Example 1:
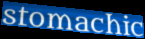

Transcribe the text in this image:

stomachic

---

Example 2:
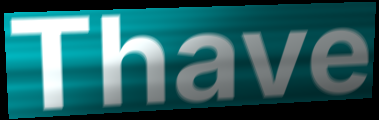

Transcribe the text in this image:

Thave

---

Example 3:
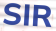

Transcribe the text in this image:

SIR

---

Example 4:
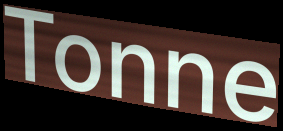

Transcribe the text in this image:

Tonne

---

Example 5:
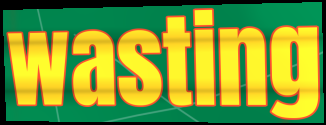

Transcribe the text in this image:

wasting